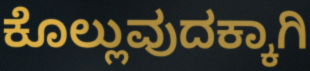
ಕೊಲ್ಲುವುದಕ್ಕಾಗಿ